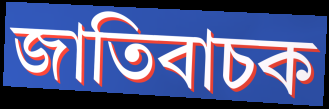
জাতিবাচক